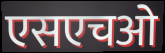
एसएचओ